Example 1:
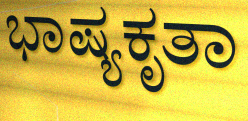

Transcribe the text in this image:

ಭಾಷ್ಯಕೃತಾ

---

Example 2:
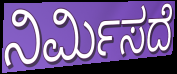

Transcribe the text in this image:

ನಿರ್ಮಿಸದೆ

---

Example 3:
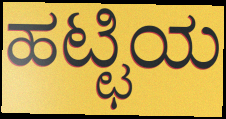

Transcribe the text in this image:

ಹಟ್ಟಿಯ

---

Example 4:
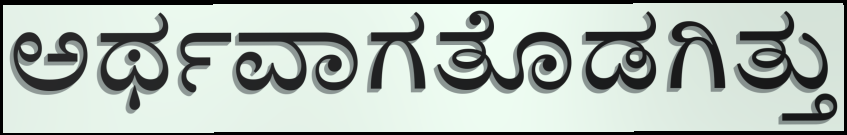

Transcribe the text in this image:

ಅರ್ಥವಾಗತೊಡಗಿತ್ತು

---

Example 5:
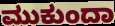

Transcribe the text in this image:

ಮುಕುಂದಾ